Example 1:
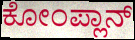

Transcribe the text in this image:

ಕೋಂಪ್ಲಾನ್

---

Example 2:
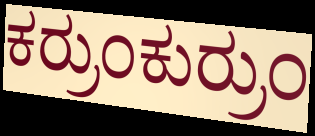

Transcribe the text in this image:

ಕರ್ರುಂಕುರ್ರುಂ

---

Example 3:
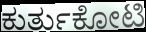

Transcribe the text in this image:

ಕುರ್ತುಕೋಟಿ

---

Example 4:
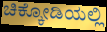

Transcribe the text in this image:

ಚಿಕ್ಕೋಡಿಯಲ್ಲಿ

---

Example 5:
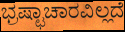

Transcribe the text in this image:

ಭ್ರಷ್ಟಾಚಾರವಿಲ್ಲದೆ